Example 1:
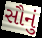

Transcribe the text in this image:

સૌનું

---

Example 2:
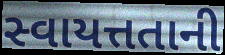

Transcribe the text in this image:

સ્વાયત્તતાની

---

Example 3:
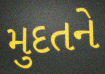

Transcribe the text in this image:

મુદતને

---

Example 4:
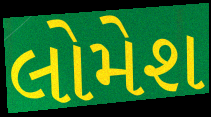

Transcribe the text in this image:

લોમેશ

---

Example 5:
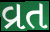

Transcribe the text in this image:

વ્રત